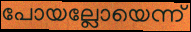
പോയല്ലോയെന്ന്